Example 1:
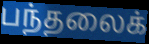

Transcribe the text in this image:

பந்தலைக்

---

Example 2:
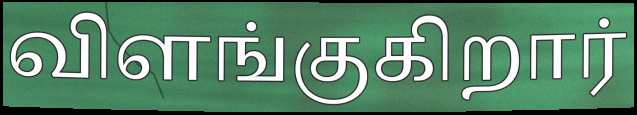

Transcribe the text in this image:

விளங்குகிறார்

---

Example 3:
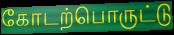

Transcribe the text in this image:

கோடற்பொருட்டு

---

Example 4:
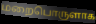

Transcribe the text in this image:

மறைபொருளாக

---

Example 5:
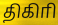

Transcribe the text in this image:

திகிரி